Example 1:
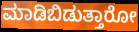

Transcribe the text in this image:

ಮಾಡಿಬಿಡುತ್ತಾರೋ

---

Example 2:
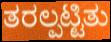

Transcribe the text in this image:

ತರಲ್ಪಟ್ಟಿತು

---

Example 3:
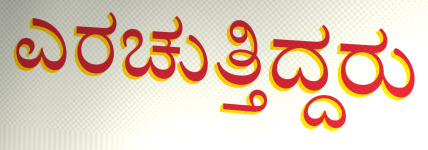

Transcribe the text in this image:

ಎರಚುತ್ತಿದ್ದರು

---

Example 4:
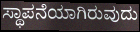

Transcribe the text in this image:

ಸ್ಥಾಪನೆಯಾಗಿರುವುದು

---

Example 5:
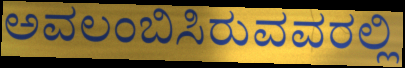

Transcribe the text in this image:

ಅವಲಂಬಿಸಿರುವವರಲ್ಲಿ